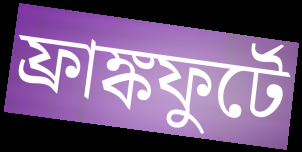
ফ্রাঙ্কফুর্টে